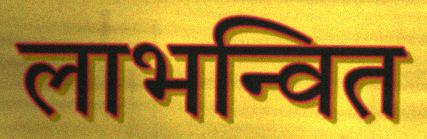
लाभन्वित